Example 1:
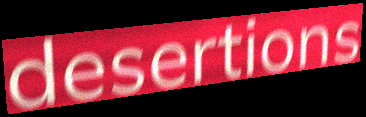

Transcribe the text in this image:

desertions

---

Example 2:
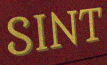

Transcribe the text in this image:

SINT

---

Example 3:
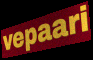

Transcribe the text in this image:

vepaari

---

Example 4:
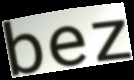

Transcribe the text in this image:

bez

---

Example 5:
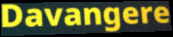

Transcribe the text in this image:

Davangere